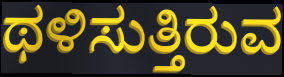
ಥಳಿಸುತ್ತಿರುವ